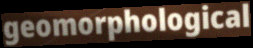
geomorphological